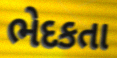
ભેદકતા